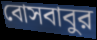
বোসবাবুর